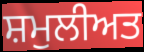
ਸ਼ਮੁਲੀਅਤ